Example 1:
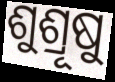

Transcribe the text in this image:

ଶୁଶ୍ରୂଷୁ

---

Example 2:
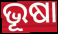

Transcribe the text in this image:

ଭୂଷା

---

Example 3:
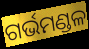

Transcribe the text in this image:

ଗର୍ଭମଣ୍ଡଳ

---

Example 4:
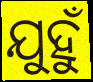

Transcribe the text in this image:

ଯୁହୁଁ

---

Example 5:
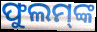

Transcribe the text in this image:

ଫୁଲମ୍‌ଙ୍କ